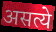
असत्ये